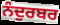
ਨੰਦੁਰਬਰ